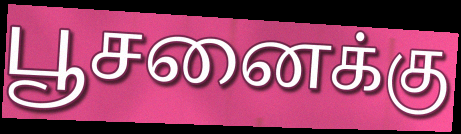
பூசனைக்கு